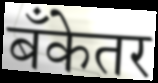
बँकेतर